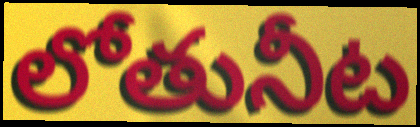
లోతునీట